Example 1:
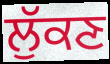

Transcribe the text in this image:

ਲੁੱਕਣ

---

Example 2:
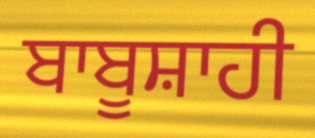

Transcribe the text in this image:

ਬਾਬੂਸ਼ਾਹੀ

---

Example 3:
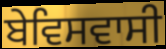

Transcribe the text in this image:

ਬੇਵਿਸਵਾਸੀ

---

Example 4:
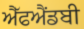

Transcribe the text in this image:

ਐੱਫਐਂਡਬੀ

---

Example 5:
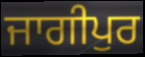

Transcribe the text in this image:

ਜਾਗੀਪੁਰ